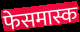
फेसमास्क